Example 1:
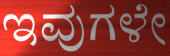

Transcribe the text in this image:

ಇವುಗಳೇ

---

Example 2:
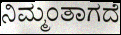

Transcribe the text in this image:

ನಿಮ್ಮಂತಾಗದೆ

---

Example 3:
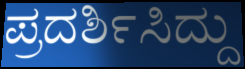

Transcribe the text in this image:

ಪ್ರದರ್ಶಿಸಿದ್ದು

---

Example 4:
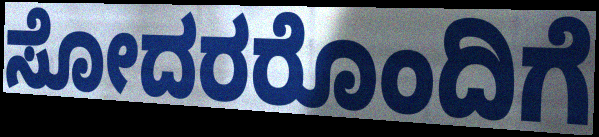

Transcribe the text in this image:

ಸೋದರರೊಂದಿಗೆ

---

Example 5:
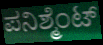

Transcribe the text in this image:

ಪನಿಶ್ಮೆಂಟ್